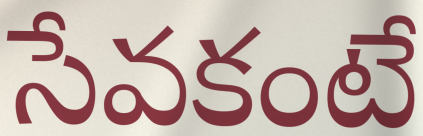
సేవకంటే